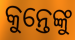
କୁନ୍ତେଙ୍କୁ